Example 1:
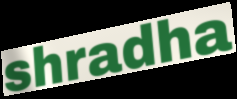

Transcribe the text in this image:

shradha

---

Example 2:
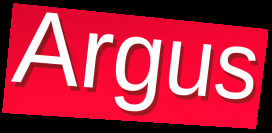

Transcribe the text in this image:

Argus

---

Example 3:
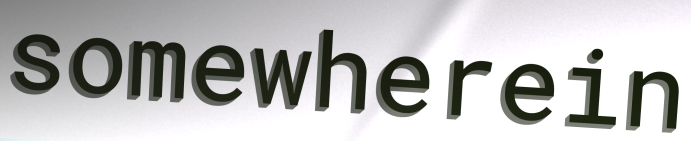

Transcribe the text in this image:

somewherein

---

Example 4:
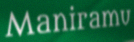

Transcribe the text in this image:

Maniramu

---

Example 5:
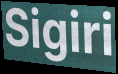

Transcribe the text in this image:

Sigiri